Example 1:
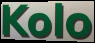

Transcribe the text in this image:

Kolo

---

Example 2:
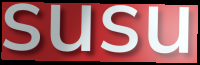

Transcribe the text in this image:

susu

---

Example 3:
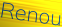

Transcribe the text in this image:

Renou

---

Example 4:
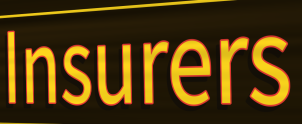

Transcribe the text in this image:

Insurers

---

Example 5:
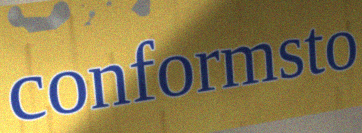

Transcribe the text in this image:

conformsto